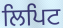
ਲਿਪਿਟ